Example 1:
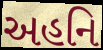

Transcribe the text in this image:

અહનિ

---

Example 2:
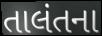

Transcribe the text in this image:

તાલંતના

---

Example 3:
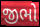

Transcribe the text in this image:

જીભો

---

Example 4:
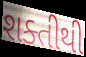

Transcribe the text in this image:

શક્તીથી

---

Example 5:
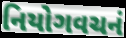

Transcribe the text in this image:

નિયોગવચનં